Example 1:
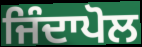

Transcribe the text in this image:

ਜਿੰਦਾਪੋਲ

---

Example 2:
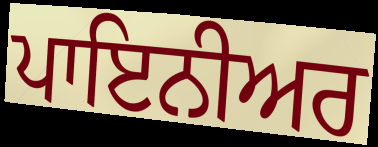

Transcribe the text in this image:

ਪਾਇਨੀਅਰ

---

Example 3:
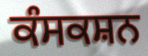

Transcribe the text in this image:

ਕੰਸਕਸ਼ਨ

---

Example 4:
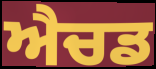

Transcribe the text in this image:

ਐਚਡ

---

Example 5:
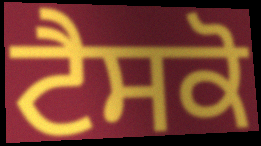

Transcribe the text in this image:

ਟੈਸਕੋ